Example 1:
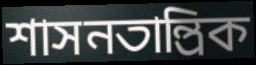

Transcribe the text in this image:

শাসনতান্ত্রিক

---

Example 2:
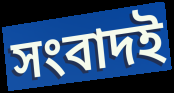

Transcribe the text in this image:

সংবাদই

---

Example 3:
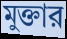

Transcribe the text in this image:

মুক্তার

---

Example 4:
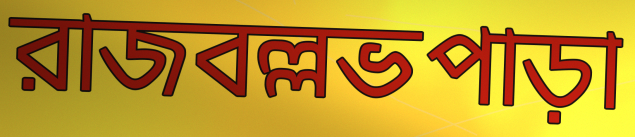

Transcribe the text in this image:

রাজবল্লভপাড়া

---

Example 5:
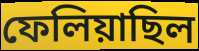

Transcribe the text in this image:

ফেলিয়াছিল